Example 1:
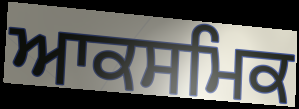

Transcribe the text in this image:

ਆਕਸਮਿਕ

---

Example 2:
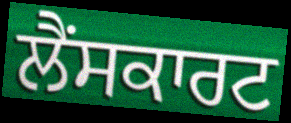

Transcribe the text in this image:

ਲੈਂਸਕਾਰਟ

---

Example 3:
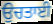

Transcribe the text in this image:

ਉਚਤਾਈ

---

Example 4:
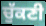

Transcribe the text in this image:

ਚੁੱਕਣੀ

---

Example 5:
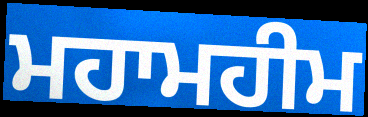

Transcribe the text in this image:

ਮਹਾਮਹੀਮ